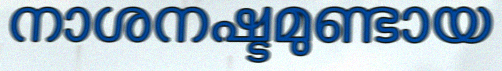
നാശനഷ്ടമുണ്ടായ